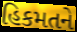
હિકમતને